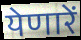
येणारें